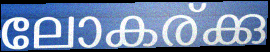
ലോകര്ക്കു